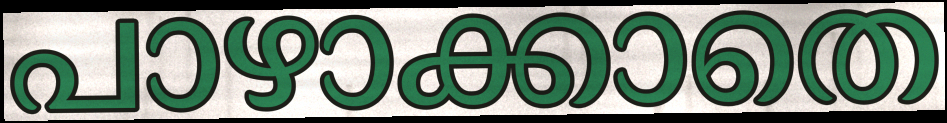
പാഴാക്കാതെ